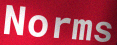
Norms